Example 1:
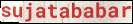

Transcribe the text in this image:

sujatababar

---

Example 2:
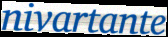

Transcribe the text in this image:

nivartante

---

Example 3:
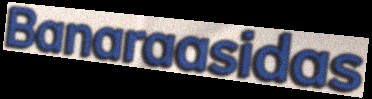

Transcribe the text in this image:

Banaraasidas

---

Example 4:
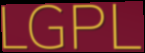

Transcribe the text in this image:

LGPL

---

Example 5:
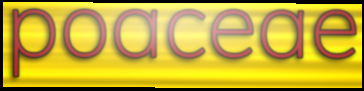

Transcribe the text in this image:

poaceae